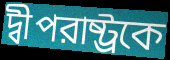
দ্বীপরাষ্ট্রকে